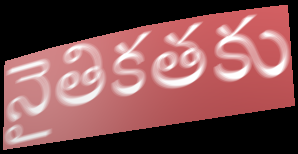
నైతికతకు